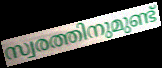
സ്വരത്തിനുമുണ്ട്